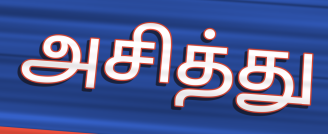
அசித்து